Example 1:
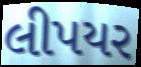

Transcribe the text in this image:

લીપયર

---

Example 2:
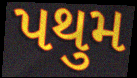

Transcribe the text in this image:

પથુમ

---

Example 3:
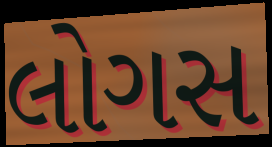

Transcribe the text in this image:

લોગસ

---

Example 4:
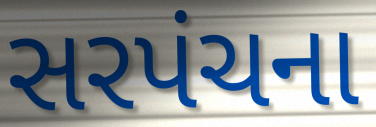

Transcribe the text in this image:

સરપંચના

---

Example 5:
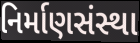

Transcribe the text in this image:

નિર્માણસંસ્થા